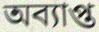
অব্যাপ্ত